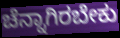
ಚೆನ್ನಾಗಿರಬೇಕು